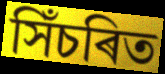
সিঁচৰিত